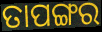
ତାପଙ୍ଗର